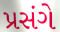
પ્રસંગે